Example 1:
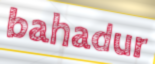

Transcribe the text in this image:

bahadur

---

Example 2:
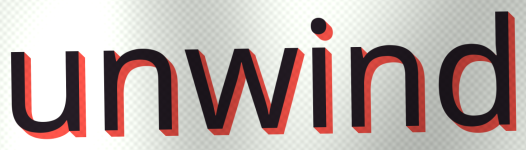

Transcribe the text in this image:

unwind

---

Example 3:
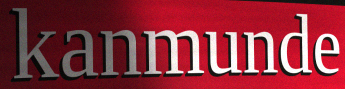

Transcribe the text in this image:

kanmunde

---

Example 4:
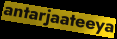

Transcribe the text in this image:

antarjaateeya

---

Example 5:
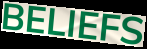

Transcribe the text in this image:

BELIEFS